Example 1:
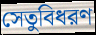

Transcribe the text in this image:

সেতুবিধরণ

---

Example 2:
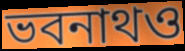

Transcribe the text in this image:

ভবনাথও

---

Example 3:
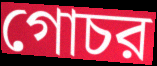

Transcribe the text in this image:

গোচর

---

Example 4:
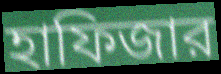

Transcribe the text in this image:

হাফিজার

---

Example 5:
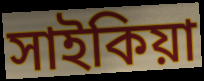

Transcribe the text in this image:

সাইকিয়া